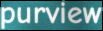
purview